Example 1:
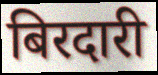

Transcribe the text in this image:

बिरदारी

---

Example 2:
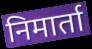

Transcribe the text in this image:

निमार्ता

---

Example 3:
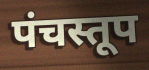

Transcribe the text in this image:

पंचस्तूप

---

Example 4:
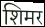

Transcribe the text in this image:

शिमर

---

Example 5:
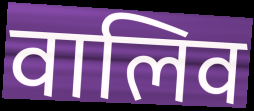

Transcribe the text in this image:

वालिव